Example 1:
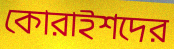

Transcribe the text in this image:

কোরাইশদের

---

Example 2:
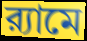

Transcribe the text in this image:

র‍্যামে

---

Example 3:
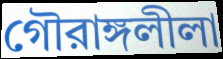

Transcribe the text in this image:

গৌরাঙ্গলীলা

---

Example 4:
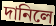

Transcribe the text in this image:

দানিলে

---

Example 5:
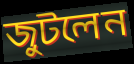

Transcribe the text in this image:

জুটলেন